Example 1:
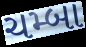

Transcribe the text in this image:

ચમ્બા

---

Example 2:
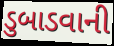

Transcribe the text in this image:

ડુબાડવાની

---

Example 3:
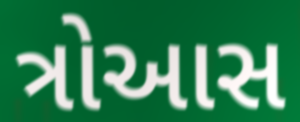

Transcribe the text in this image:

ત્રોઆસ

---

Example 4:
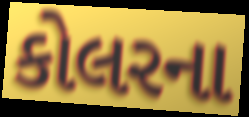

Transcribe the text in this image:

કોલરના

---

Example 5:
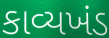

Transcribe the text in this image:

કાવ્યખંડ